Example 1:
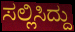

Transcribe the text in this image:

ಸಲ್ಲಿಸಿದ್ದು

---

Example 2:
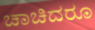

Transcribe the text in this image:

ಚಾಚಿದರೂ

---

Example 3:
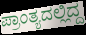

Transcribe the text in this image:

ಪ್ರಾಂತ್ಯದಲ್ಲಿದ್ದ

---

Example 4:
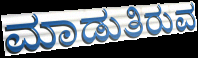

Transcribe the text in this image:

ಮಾಡುತಿರುವ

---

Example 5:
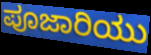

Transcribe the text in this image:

ಪೂಜಾರಿಯು